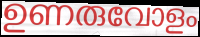
ഉണരുവോളം